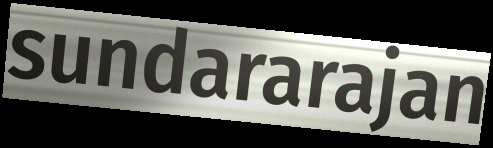
sundararajan